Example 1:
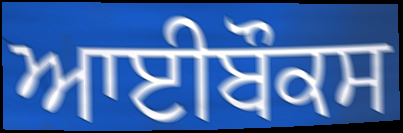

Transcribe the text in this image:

ਆਈਬੌਕਸ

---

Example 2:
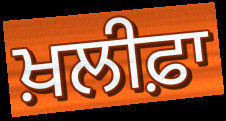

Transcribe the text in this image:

ਖ਼ਲੀਫ਼ਾ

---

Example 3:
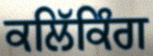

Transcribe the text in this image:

ਕਲਿੱਕਿੰਗ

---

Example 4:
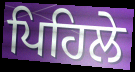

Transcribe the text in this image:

ਪਿਹਿਲੇ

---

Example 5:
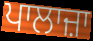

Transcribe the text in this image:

ਪਾਲਾਜ਼ਾ